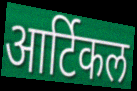
आर्टिकल